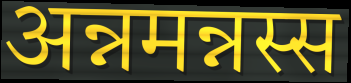
अन्नमन्नस्स